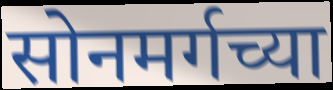
सोनमर्गच्या